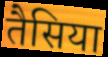
तैसिया